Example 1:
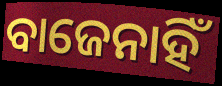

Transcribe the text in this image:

ବାଜେନାହିଁ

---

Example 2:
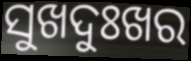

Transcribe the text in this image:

ସୁଖଦୁଃଖର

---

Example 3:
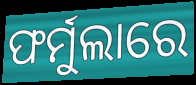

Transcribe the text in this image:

ଫର୍ମୁଲାରେ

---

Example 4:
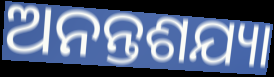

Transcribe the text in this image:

ଅନନ୍ତଶଯ୍ୟା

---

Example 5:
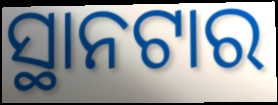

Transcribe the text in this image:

ସ୍ଥାନଟାର